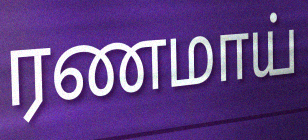
ரணமாய்